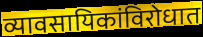
व्यावसायिकांविरोधात